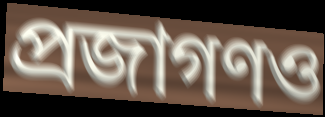
প্রজাগণও